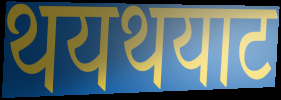
थयथयाट